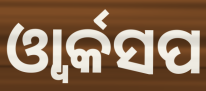
ଓ୍ୱାର୍କସପ